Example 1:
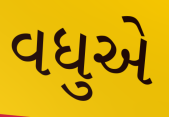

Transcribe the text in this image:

વધુએ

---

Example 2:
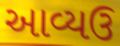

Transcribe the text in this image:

આવ્યઉ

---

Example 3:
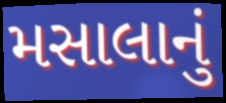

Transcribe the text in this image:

મસાલાનું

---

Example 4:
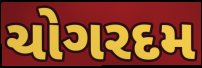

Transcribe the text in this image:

ચોગરદમ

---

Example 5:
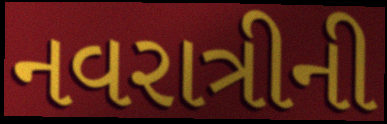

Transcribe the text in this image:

નવરાત્રીની